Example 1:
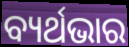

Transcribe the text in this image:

ବ୍ୟର୍ଥଭାର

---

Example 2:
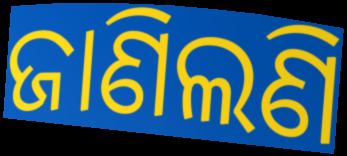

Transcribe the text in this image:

ଜାଣିଲଣି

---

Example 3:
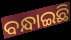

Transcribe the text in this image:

ବନ୍ଧାଇଛି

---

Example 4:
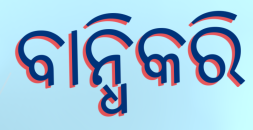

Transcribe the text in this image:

ବାନ୍ଧିକରି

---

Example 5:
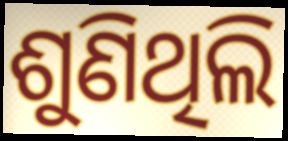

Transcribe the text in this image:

ଶୁଣିଥିଲି